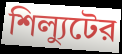
শিল্যুটের